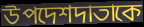
উপদেশদাতাকে